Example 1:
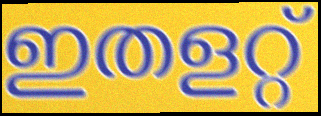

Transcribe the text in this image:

ഇതളറ്റ്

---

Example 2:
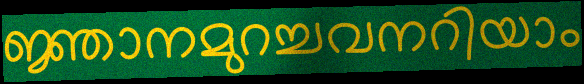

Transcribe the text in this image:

ജ്ഞാനമുറച്ചവനറിയാം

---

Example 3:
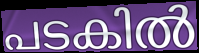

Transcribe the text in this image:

പടകിൽ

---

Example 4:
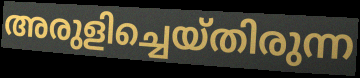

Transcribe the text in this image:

അരുളിച്ചെയ്തിരുന്ന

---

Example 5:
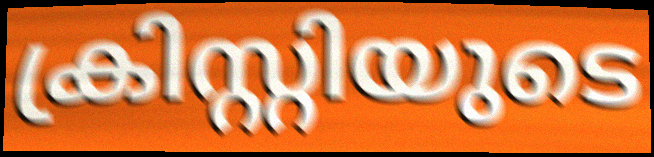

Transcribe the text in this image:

ക്രിസ്റ്റിയുടെ